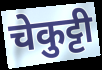
चेकुट्टी